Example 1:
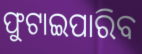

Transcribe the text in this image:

ଫୁଟାଇପାରିବ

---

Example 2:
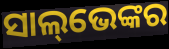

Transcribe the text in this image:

ସାଲ୍‌ଭେଙ୍କର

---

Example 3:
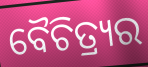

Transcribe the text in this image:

ବୈଚିତ୍ର୍ୟର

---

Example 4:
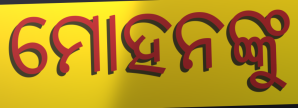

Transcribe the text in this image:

ମୋହନଙ୍କୁ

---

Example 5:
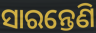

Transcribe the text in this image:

ସାରନ୍ତେଣି